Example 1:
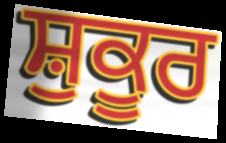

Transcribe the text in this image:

ਸ਼ੁਕੂਰ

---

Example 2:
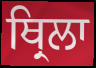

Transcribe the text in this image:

ਥ੍ਰਿਲਾ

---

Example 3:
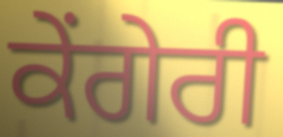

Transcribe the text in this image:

ਕੇਂਗੇਰੀ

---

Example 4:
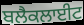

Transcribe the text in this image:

ਬਲੈਕਲਾਈਟ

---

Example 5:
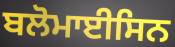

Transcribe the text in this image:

ਬਲੋਮਾਈਸਿਨ